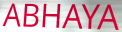
ABHAYA